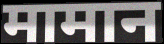
मामान